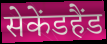
सेकेंडहैंड